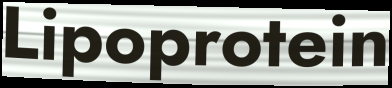
Lipoprotein